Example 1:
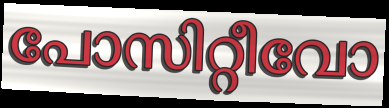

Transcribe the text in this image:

പോസിറ്റീവോ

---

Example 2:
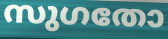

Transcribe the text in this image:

സുഗതോ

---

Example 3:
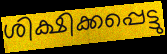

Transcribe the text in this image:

ശിക്ഷിക്കപ്പെട്ടു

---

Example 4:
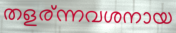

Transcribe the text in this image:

തളര്ന്നവശനായ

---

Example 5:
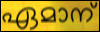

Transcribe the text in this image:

ഏമാന്